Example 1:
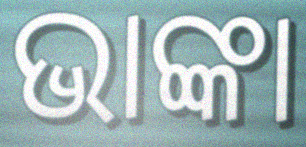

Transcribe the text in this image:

ଭାଙ୍କା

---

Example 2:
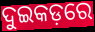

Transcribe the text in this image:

ଦୁଇକଡ଼ରେ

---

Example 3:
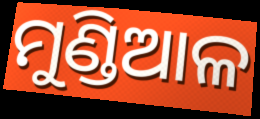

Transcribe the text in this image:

ମୁଣ୍ଡିଆଳ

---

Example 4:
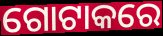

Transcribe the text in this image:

ଗୋଟାକରେ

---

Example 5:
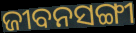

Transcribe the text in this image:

ଜୀବନସଙ୍ଗୀ